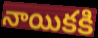
నాయికకి